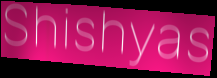
Shishyas